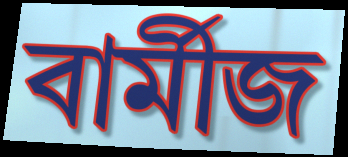
বাৰ্মীজ